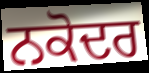
ਨਕੋਦਰ